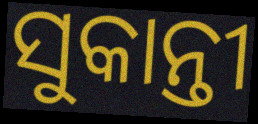
ସୁକାନ୍ତୀ